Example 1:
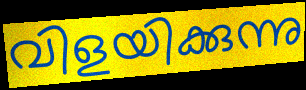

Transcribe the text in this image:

വിളയിക്കുന്നു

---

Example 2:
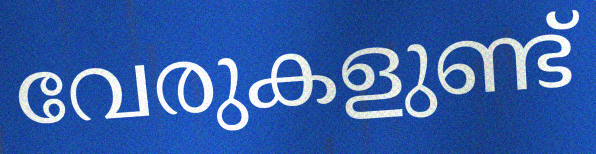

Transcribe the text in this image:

വേരുകളുണ്ട്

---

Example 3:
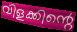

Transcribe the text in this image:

വിളക്കിന്റെ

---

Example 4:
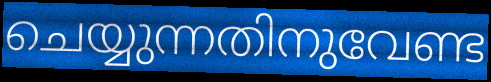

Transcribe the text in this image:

ചെയ്യുന്നതിനുവേണ്ട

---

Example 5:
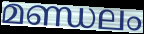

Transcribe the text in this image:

മണ്ഡലം